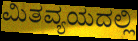
ಮಿತವ್ಯಯದಲ್ಲಿ